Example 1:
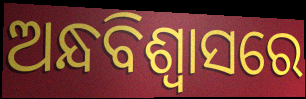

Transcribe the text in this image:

ଅନ୍ଧବିଶ୍ବାସରେ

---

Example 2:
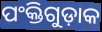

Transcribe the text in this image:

ପଂକ୍ତିଗୁଡ଼ାକ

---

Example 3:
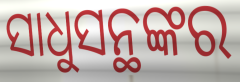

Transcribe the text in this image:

ସାଧୁସନ୍ଥଙ୍କର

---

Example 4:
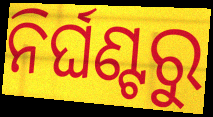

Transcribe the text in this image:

ନିର୍ଘଣ୍ଟରୁ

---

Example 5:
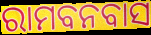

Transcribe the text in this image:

ରାମବନବାସ